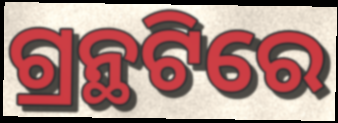
ଗ୍ରନ୍ଥଟିରେ